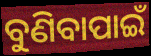
ବୁଣିବାପାଇଁ